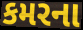
કમરના